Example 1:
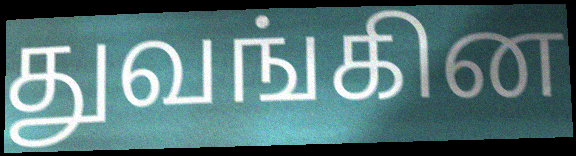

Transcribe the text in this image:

துவங்கின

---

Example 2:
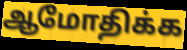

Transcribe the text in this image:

ஆமோதிக்க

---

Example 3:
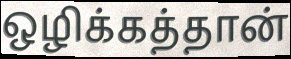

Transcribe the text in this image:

ஒழிக்கத்தான்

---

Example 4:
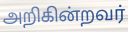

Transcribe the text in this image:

அறிகின்றவர்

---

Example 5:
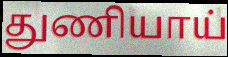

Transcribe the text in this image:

துணியாய்